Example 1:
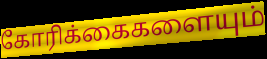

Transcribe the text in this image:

கோரிக்கைகளையும்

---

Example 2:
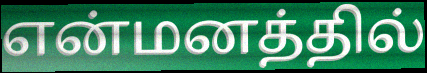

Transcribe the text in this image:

என்மனத்தில்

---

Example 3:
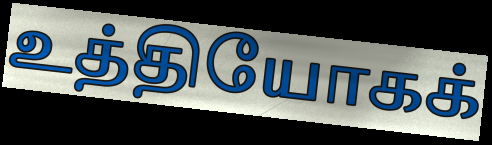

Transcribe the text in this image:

உத்தியோகக்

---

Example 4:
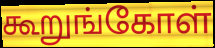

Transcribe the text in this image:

கூறுங்கோள்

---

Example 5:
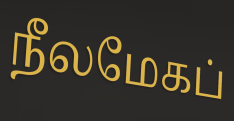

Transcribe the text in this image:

நீலமேகப்